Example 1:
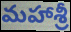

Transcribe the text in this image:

మహాశ్రీ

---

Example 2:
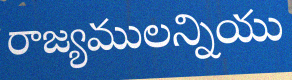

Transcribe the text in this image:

రాజ్యములన్నియు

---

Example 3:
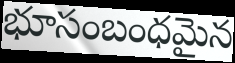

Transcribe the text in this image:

భూసంబంధమైన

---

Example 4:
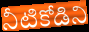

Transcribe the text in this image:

నీటికోడిని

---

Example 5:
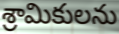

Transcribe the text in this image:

శ్రామికులను